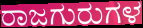
ರಾಜಗುರುಗಳ